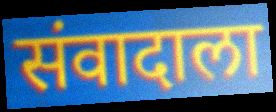
संवादाला